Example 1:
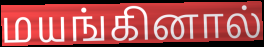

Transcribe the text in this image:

மயங்கினால்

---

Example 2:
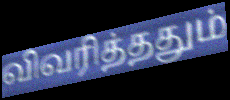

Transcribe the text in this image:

விவரித்ததும்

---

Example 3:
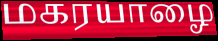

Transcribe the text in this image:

மகரயாழை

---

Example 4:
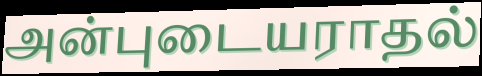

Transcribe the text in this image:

அன்புடையராதல்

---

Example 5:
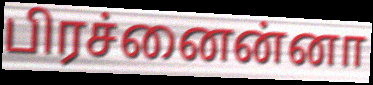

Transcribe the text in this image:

பிரச்னைன்னா